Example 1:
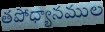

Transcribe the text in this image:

తపోధ్యానముల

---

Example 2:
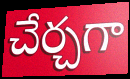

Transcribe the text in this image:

చేర్చగా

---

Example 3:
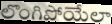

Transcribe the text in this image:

లొంగిపోయేలా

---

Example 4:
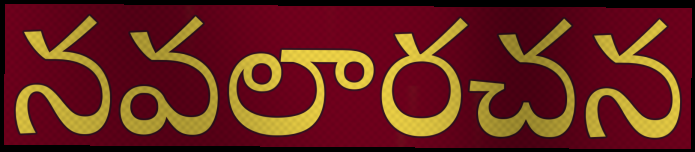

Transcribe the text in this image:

నవలారచన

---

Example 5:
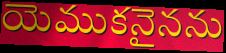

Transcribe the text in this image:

యెముకనైనను